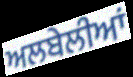
ਅਲਬੇਲੀਆਂ